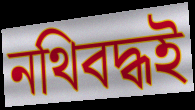
নথিবদ্ধই